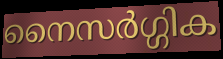
നൈസർഗ്ഗിക